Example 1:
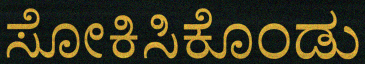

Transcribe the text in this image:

ಸೋಕಿಸಿಕೊಂಡು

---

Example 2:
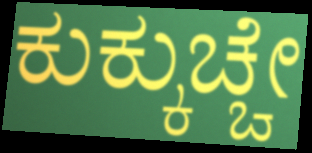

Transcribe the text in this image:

ಕುಕ್ಕುಚ್ಚೇ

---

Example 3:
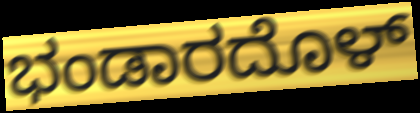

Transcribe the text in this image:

ಭಂಡಾರದೊಳ್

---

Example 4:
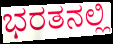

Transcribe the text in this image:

ಭರತನಲ್ಲಿ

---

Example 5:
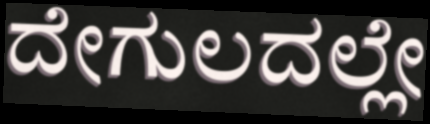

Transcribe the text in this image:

ದೇಗುಲದಲ್ಲೇ